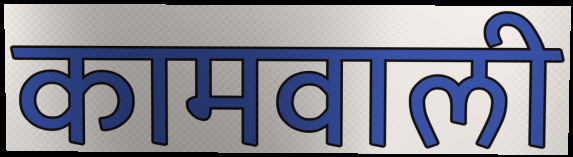
कामवाली